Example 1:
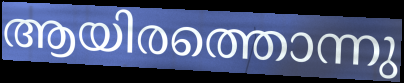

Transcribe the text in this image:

ആയിരത്തൊന്നു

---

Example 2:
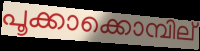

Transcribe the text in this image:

പൂക്കാക്കൊമ്പില്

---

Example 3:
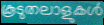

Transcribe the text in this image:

കൂടുതലാളുകൾ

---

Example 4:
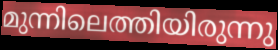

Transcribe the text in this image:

മുന്നിലെത്തിയിരുന്നു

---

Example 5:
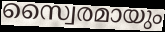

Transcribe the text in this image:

സ്വൈരമായും